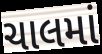
ચાલમાં